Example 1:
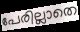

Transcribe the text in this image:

പേരില്ലാതെ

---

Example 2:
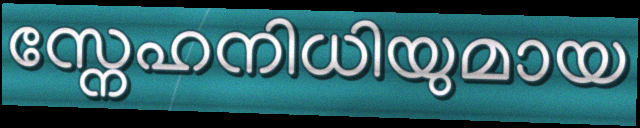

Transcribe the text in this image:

സ്നേഹനിധിയുമായ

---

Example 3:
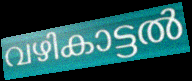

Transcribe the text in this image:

വഴികാട്ടൽ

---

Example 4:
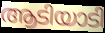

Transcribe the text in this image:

ആടിയാടി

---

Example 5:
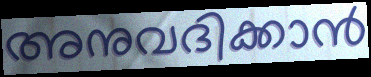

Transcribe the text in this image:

അനുവദിക്കാൻ